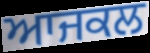
ਆਜਕਲ